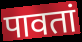
पावतां